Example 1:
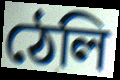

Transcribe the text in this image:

ঠেলি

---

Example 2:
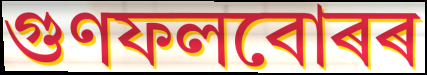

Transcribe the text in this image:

গুণফলবোৰৰ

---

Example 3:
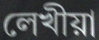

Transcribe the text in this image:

লেখীয়া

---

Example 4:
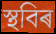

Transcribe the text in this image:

স্থবিৰ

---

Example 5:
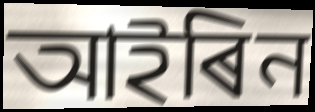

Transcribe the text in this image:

আইৰিন